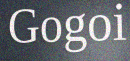
Gogoi